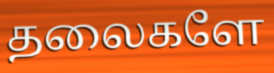
தலைகளே